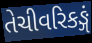
તેચીવરિકઙ્ગં